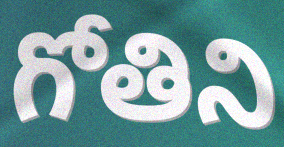
గోతిని